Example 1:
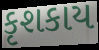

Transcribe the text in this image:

કૃશકાય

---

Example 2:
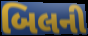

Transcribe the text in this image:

બિલની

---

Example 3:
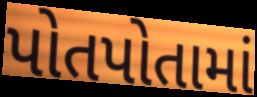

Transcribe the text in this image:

પોતપોતામાં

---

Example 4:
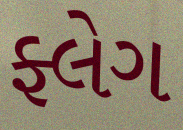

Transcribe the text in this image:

ફ્લેગ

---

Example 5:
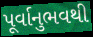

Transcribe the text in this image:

પૂર્વાનુભવથી